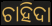
ଚାହିଦା